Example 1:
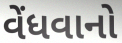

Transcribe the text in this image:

વેંધવાનો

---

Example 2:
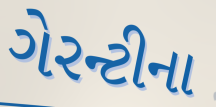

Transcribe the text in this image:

ગેરન્ટીના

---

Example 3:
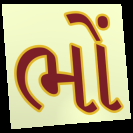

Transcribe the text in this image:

ભોં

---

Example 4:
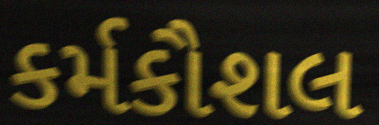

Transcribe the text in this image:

કર્મકૌશલ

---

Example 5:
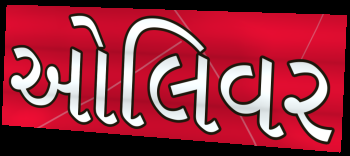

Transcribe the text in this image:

ઓલિવર